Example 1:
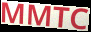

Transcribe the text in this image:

MMTC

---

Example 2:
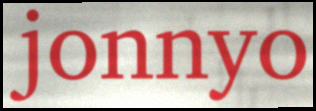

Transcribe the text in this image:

jonnyo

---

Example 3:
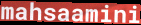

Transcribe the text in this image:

mahsaamini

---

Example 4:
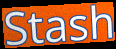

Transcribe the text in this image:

Stash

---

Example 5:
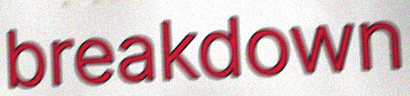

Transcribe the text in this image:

breakdown